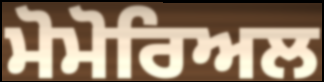
ਮੋਮੋਰਿਅਲ